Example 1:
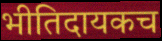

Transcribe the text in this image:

भीतिदायकच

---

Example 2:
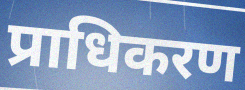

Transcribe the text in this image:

प्राधिकरण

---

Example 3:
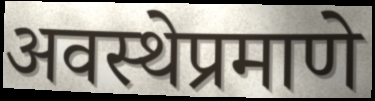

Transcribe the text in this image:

अवस्थेप्रमाणे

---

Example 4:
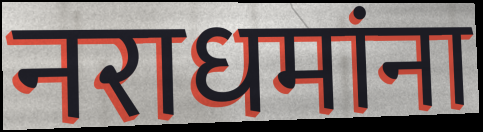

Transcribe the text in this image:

नराधमांना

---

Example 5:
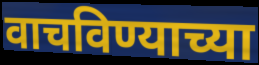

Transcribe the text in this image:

वाचविण्याच्या